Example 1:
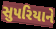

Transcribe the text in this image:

સુપરિયાને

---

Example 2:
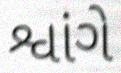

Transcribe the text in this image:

શ્વાંગે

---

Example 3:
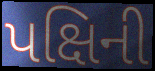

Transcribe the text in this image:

પક્ષિની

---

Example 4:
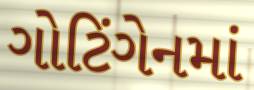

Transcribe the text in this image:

ગોટિંગેનમાં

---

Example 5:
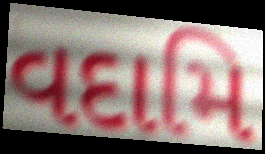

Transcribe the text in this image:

વદામિ